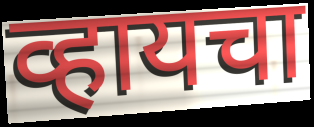
व्हायचा